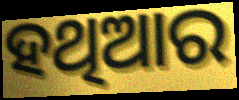
ହଥିଆର